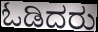
ಓಡಿದರು